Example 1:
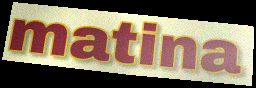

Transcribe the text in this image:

matina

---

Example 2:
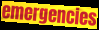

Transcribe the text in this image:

emergencies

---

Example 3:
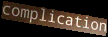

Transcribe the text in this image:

complication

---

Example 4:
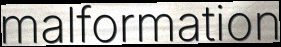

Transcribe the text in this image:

malformation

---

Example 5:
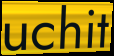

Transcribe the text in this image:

uchit